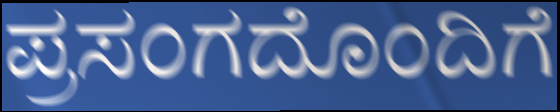
ಪ್ರಸಂಗದೊಂದಿಗೆ